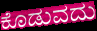
ಕೊಡುವದು